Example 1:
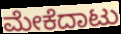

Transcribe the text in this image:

ಮೇಕೆದಾಟು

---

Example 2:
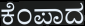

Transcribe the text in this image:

ಕೆಂಪಾದ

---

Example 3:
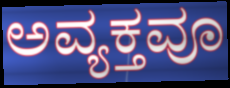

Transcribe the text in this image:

ಅವ್ಯಕ್ತವೂ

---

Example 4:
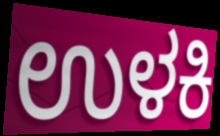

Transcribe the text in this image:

ಉಳಕಿ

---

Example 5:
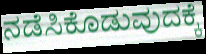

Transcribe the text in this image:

ನಡೆಸಿಕೊಡುವುದಕ್ಕೆ